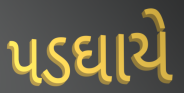
પડઘાયે